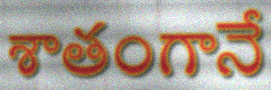
శాతంగానే